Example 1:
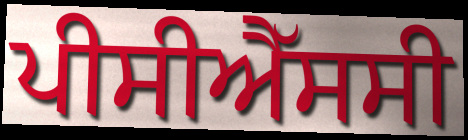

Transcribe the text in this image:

ਪੀਸੀਐੱਸਸੀ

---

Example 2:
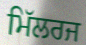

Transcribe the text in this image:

ਮਿੱਲਰਜ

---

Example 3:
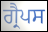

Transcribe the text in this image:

ਗ੍ਰੈਪਸ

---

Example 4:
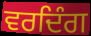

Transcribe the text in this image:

ਵਰਦਿੰਗ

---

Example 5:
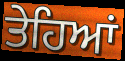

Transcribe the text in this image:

ਤੇਹਿਆਂ